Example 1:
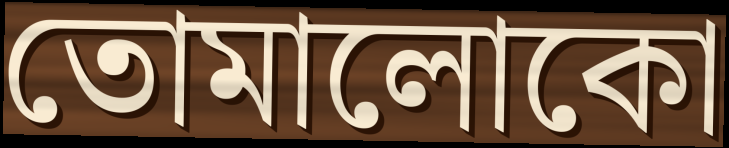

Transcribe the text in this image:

তোমালোকো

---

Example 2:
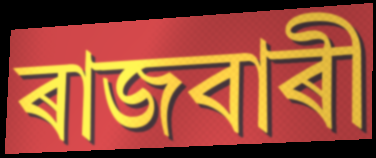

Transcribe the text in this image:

ৰাজবাৰী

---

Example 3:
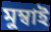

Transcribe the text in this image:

মুম্বাই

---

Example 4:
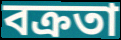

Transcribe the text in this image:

বক্ৰতা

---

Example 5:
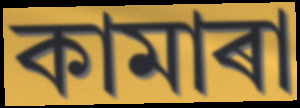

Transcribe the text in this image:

কামাৰা